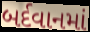
બર્દવાનમાં